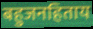
बहुजनहिताय